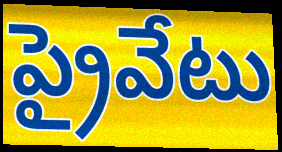
ప్రైవేటు